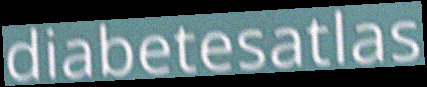
diabetesatlas